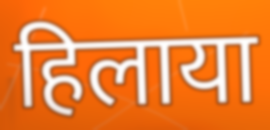
हिलाया